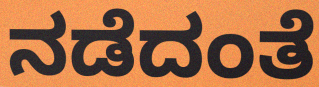
ನಡೆದಂತೆ